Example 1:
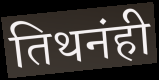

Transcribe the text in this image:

तिथनंही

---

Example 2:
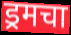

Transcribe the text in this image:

ड्रमचा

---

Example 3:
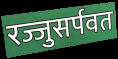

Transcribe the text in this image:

रज्जुसर्पवत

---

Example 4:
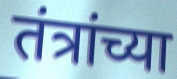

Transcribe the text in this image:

तंत्रांच्या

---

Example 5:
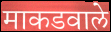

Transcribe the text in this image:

माकडवाले